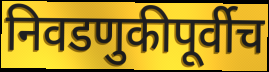
निवडणुकीपूर्वीच